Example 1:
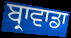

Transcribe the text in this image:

ਬ੍ਰਾਵਾਡਾ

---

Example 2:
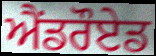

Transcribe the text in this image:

ਐਂਡਰੌਏਡ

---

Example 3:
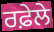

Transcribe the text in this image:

ਰਫ਼ੇਲੇ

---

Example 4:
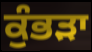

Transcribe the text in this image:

ਕੁੰਭੜਾ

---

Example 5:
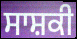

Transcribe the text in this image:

ਸਾਸ਼ਕੀ